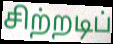
சிற்றடிப்